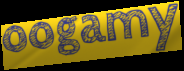
oogamy